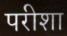
परीशा